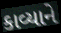
કાવ્યાને